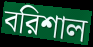
বরিশাল